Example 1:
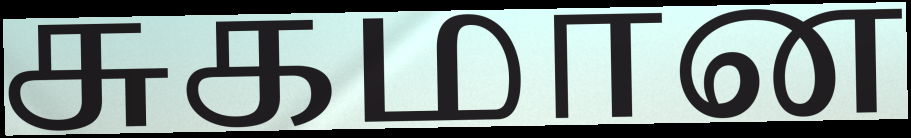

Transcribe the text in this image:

சுகமான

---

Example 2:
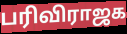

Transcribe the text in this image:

பரிவிராஜக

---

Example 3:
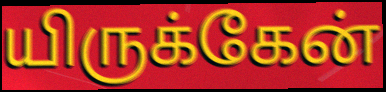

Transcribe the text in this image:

யிருக்கேன்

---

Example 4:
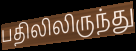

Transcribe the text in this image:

பதிலிலிருந்து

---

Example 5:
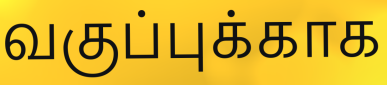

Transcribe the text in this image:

வகுப்புக்காக